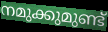
നമുക്കുമുണ്ട്